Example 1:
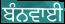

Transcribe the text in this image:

ਬੰਨਵਾਈ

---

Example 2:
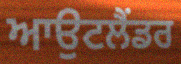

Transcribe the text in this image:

ਆਉਟਲੈਂਡਰ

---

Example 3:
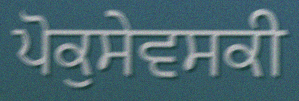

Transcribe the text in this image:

ਪੋਕੁਸੇਵਸਕੀ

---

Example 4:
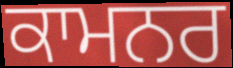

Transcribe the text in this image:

ਕਾਮਨਰ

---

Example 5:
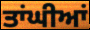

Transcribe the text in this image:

ਤਾਂਘੀਆਂ